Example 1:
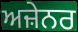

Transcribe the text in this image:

ਅਜ਼ੇਨਰ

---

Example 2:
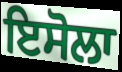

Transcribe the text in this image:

ਇਸੋਲਾ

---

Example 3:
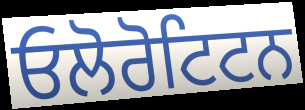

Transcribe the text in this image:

ਓਲੋਰੋਟਿਟਨ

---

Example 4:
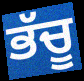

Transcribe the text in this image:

ਭੱਚੂ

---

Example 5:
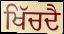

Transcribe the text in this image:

ਖਿੱਚਦੈ